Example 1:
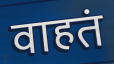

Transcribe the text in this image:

वाहतं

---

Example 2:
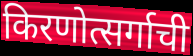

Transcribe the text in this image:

किरणोत्सर्गाची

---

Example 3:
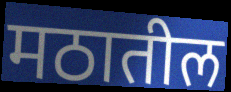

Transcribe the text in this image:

मठातील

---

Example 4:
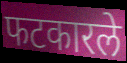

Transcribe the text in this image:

फटकारले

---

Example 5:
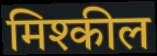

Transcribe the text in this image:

मिश्कील